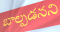
బాల్పడనని